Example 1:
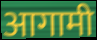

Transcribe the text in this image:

आगामी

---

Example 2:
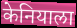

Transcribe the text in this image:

केनियाला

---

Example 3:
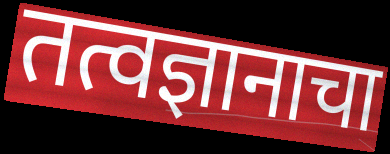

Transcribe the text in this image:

तत्वज्ञानाचा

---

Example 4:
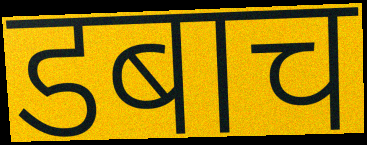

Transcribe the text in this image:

डबाच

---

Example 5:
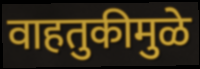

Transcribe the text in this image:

वाहतुकीमुळे